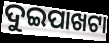
ଦୁଇପାଖଟା